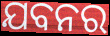
ଯବନର